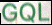
GQL